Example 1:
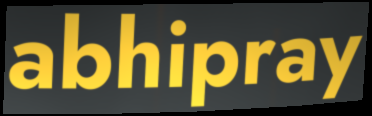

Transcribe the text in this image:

abhipray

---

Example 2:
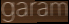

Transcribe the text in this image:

garam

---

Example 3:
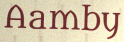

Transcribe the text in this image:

Aamby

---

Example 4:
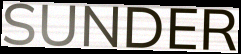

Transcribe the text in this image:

SUNDER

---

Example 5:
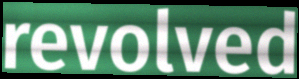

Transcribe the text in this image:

revolved